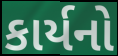
કાર્યનો